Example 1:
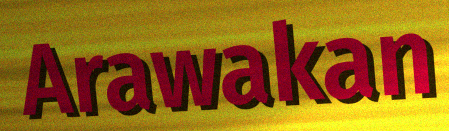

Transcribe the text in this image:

Arawakan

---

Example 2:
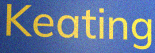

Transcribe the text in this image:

Keating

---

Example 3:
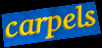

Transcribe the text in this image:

carpels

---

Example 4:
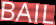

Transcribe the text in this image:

BAIL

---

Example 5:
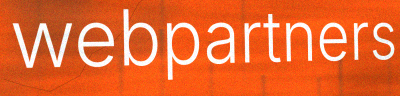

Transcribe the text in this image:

webpartners